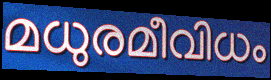
മധുരമീവിധം